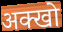
अक्खो